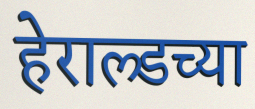
हेराल्डच्या